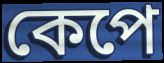
কেপে